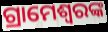
ଗ୍ରାମେଶ୍ୱରଙ୍କ